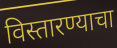
विस्तारण्याचा